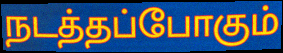
நடத்தப்போகும்